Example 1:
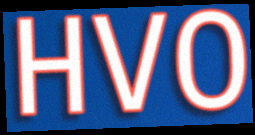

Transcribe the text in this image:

HVO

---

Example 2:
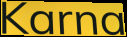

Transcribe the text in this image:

Karna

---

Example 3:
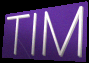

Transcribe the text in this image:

TIM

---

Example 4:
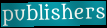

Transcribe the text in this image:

publishers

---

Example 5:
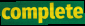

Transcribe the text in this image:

complete